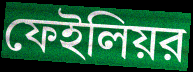
ফেইলিয়র